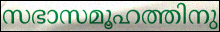
സഭാസമൂഹത്തിനു